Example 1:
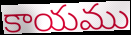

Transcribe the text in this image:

కాయము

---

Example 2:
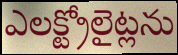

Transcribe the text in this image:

ఎలక్ట్రోలైట్లను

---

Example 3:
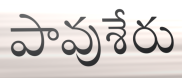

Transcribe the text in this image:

పావుశేరు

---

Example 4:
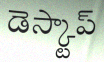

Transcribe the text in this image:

డెస్క్టాప్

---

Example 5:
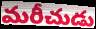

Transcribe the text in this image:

మరీచుడు